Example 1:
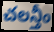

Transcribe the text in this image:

చలన్తీం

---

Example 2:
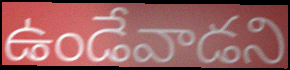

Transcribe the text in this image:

ఉండేవాడని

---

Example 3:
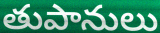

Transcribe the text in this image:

తుపానులు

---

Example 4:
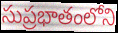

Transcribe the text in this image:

సుప్రభాతంలోని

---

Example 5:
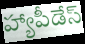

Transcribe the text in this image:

హ్యాపీడేస్